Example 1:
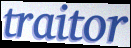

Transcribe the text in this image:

traitor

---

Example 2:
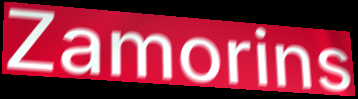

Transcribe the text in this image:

Zamorins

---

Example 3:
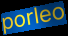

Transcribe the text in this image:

porleo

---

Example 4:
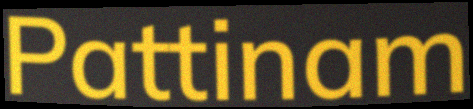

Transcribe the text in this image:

Pattinam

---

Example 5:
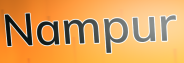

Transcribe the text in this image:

Nampur